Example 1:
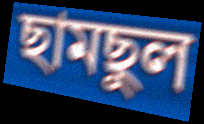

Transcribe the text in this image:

ছামছুল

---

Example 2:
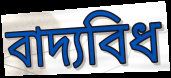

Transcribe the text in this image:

বাদ্যবিধ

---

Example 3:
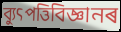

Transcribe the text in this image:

ব্যুৎপত্তিবিজ্ঞানৰ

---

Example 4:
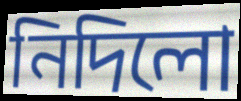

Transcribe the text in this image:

নিদিলো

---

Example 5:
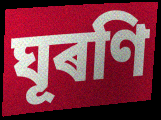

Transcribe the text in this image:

ঘূৰণি